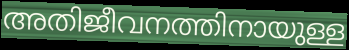
അതിജീവനത്തിനായുള്ള